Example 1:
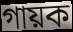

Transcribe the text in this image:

গায়ক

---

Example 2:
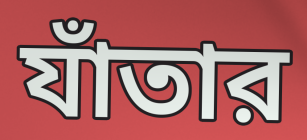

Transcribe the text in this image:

যাঁতার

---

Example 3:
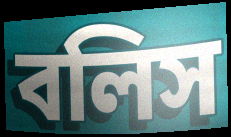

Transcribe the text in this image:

বলিস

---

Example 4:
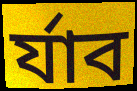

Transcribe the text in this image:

র্যাব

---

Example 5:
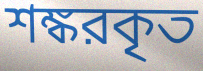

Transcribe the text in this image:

শঙ্করকৃত